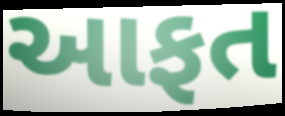
આફત